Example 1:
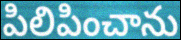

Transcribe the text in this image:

పిలిపించాను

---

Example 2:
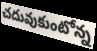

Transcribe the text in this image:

చదువుకుంటోన్న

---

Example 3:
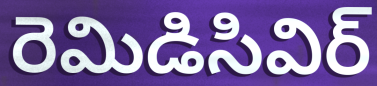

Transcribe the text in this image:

రెమిడిసివిర్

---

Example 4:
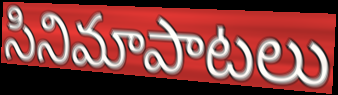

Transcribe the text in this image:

సినిమాపాటలు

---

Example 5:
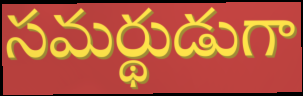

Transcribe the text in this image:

సమర్థుడుగా